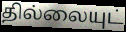
தில்லையுட்